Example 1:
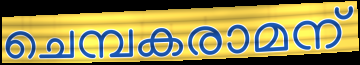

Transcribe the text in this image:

ചെമ്പകരാമന്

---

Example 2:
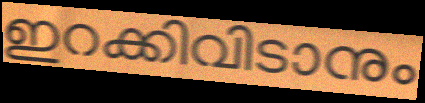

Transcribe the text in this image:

ഇറക്കിവിടാനും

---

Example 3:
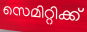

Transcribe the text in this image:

സെമിറ്റിക്ക്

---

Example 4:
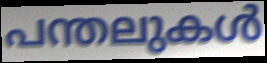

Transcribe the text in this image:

പന്തലുകൾ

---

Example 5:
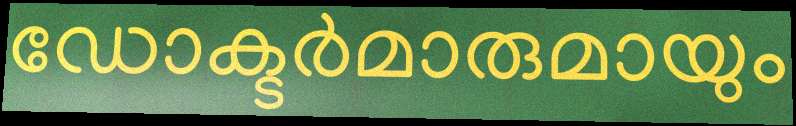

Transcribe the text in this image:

ഡോക്ടർമാരുമായും